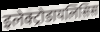
इलेक्ट्रोडायलिसिस